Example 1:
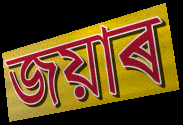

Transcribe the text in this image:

জয়াৰ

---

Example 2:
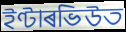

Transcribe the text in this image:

ইণ্টাৰভিউত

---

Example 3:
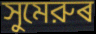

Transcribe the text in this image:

সুমেৰুৰ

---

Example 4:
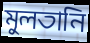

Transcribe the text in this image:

মুলতানি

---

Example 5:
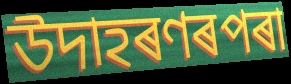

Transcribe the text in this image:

উদাহৰণৰপৰা